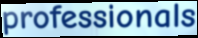
professionals